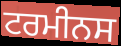
ਟਰਮੀਨਸ